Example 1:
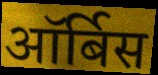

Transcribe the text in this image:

ऑर्बिस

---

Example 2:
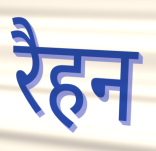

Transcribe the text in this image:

रैहन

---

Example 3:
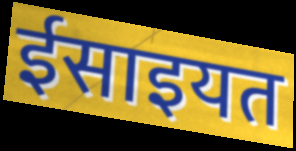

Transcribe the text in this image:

ईसाइयत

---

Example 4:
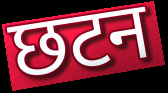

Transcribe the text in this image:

छटन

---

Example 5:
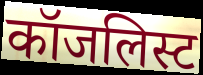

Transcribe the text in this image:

कॉजलिस्ट